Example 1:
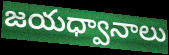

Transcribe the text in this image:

జయధ్వానాలు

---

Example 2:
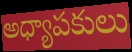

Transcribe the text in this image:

అధ్యాపకులు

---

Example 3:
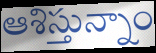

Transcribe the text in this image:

ఆశిస్తున్నాం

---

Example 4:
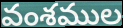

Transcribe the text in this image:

వంశముల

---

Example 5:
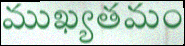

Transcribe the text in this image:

ముఖ్యతమం